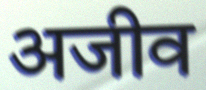
अजीव